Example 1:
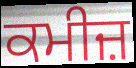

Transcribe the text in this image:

ਕਮੀਜ਼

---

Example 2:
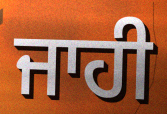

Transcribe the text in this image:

ਜਾਹੀ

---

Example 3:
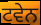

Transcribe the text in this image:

ਟਵੇਨ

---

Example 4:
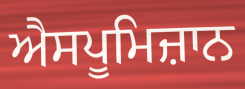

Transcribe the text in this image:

ਐਸਪੂਮਿਜ਼ਾਨ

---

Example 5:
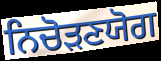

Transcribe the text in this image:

ਨਿਚੋੜਣਯੋਗ